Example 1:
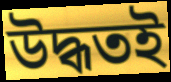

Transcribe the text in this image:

উদ্ধতই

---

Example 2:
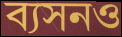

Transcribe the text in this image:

ব্যসনও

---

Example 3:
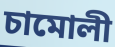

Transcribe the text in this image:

চামোলী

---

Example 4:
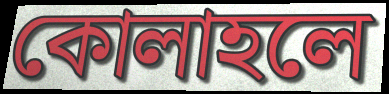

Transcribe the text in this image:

কোলাহলে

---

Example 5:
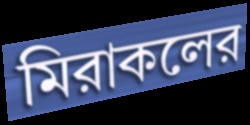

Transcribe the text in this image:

মিরাকলের